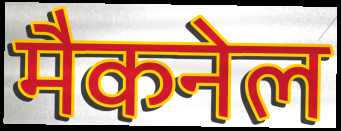
मैकनेल